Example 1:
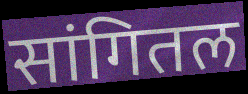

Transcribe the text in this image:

सांगितल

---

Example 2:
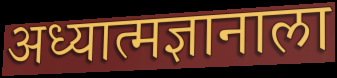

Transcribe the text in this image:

अध्यात्मज्ञानाला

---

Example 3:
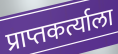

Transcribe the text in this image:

प्राप्तकर्त्याला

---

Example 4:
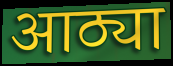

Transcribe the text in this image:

आठ्या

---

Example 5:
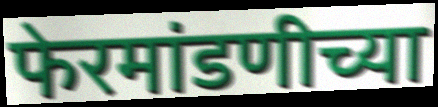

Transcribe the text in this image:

फेरमांडणीच्या